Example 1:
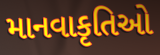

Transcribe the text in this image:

માનવાકૃતિઓ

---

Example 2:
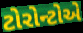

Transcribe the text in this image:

ટોરોન્ટોએ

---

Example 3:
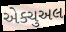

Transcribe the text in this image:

એક્ચુઅલ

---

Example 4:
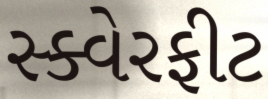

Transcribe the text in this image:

સ્ક્વેરફીટ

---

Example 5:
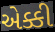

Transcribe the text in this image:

એક્કી